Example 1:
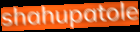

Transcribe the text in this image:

shahupatole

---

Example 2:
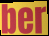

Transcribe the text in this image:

ber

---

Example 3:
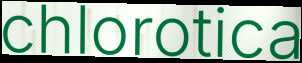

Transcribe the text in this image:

chlorotica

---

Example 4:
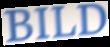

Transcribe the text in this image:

BILD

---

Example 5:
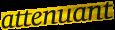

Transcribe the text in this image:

attenuant